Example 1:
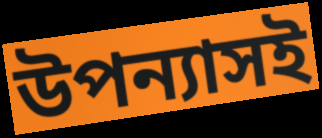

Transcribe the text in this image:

উপন্যাসই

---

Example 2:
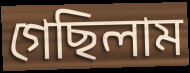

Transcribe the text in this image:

গেছিলাম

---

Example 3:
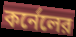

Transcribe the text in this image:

কর্নেলের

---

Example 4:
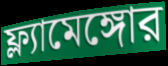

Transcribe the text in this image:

ফ্ল্যামেঙ্গোর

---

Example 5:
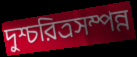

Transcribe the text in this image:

দুশ্চরিত্রসম্পন্ন